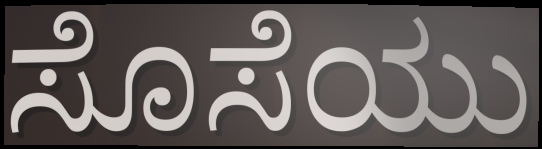
ಸೊಸೆಯು